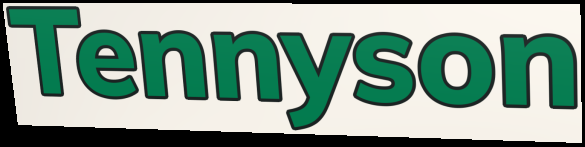
Tennyson